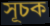
সূচক